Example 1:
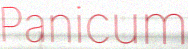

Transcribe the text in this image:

Panicum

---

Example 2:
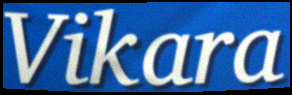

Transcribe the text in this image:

Vikara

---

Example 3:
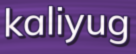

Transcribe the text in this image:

kaliyug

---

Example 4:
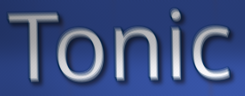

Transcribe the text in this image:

Tonic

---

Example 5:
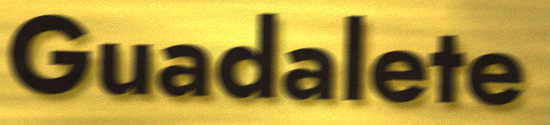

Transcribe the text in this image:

Guadalete